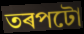
তৰপটো